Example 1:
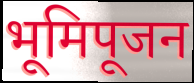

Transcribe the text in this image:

भूमिपूजन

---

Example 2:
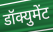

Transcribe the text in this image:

डॉक्युमेंट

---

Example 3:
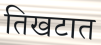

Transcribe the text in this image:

तिखटात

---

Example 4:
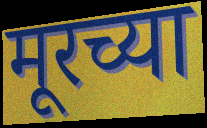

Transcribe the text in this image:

मूरच्या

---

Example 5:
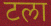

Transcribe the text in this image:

टला